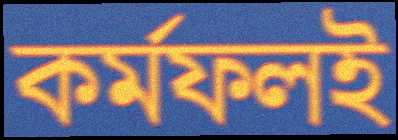
কর্মফলই